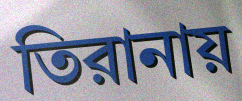
তিরানায়